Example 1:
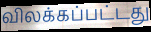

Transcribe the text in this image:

விலக்கப்பட்டது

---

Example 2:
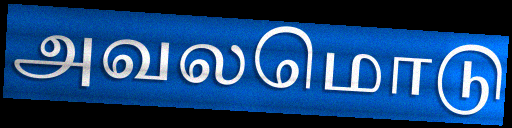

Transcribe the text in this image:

அவலமொடு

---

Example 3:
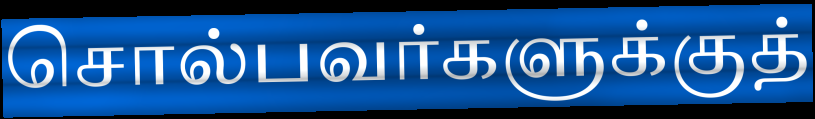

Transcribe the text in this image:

சொல்பவர்களுக்குத்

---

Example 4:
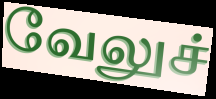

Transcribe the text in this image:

வேலுச்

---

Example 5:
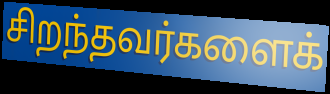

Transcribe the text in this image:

சிறந்தவர்களைக்